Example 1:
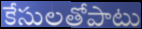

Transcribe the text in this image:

కేసులతోపాటు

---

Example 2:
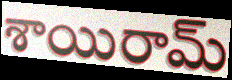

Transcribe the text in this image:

శాయిరామ్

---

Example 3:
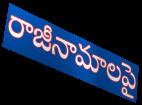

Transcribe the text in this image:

రాజీనామాలపై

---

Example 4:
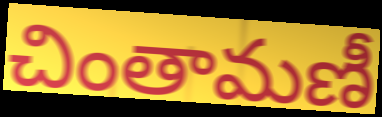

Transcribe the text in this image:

చింతామణీ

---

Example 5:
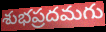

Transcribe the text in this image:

శుభప్రదమగు